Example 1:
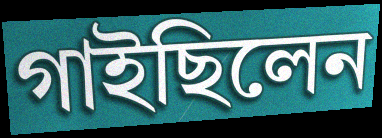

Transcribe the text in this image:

গাইছিলেন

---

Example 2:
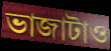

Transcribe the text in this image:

ভাজাটাও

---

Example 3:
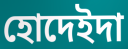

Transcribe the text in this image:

হোদেইদা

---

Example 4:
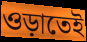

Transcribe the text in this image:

ওড়াতেই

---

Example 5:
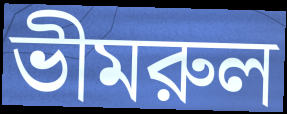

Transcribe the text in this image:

ভীমরুল